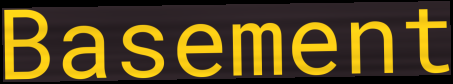
Basement